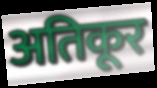
अतिकूर